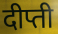
दीप्ती